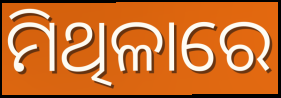
ମିଥିଳାରେ